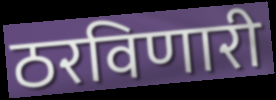
ठरविणारी